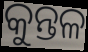
କୁନ୍ତଳ